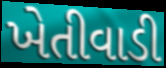
ખેતીવાડી